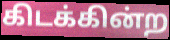
கிடக்கின்ற